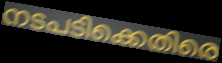
നടപടിക്കെതിരെ